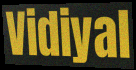
Vidiyal